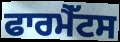
ਫਾਰਮੈੱਟਸ